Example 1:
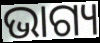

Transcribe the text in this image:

ଭାଗ୍ୟ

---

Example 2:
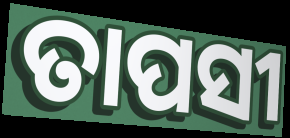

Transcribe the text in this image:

ତାପସୀ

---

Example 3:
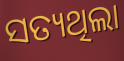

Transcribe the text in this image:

ସତ୍ୟଥିଲା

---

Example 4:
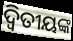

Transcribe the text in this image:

ଦ୍ଵିତୀୟଙ୍କ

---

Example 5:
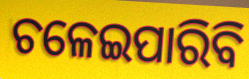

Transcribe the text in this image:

ଚଳେଇପାରିବି